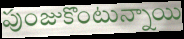
పుంజుకొంటున్నాయి